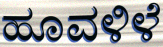
ಹೂವಳಿಳೆ